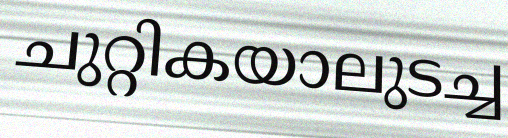
ചുറ്റികയാലുടച്ച